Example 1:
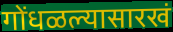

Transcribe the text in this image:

गोंधळल्यासारखं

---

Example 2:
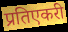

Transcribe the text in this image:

प्रतिएकरी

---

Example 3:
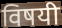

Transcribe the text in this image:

विषयी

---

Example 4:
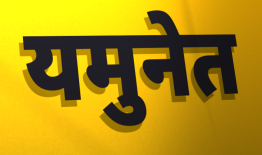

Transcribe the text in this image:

यमुनेत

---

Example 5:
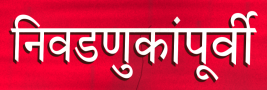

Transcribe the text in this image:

निवडणुकांपूर्वी